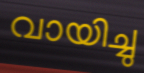
വായിച്ചു